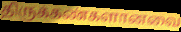
திருக்கண்களானவை